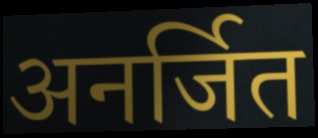
अनर्जित